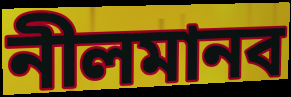
নীলমানব